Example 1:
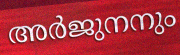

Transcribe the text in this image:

അർജുനനും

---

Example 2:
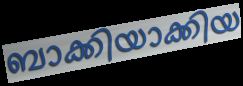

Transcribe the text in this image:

ബാക്കിയാക്കിയ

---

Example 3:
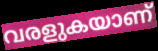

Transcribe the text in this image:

വരളുകയാണ്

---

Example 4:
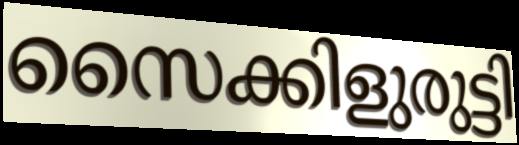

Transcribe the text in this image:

സൈക്കിളുരുട്ടി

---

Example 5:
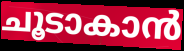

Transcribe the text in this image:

ചൂടാകാൻ